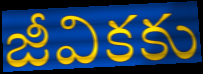
జీవికకు